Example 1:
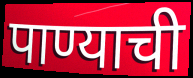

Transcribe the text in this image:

पाण्याची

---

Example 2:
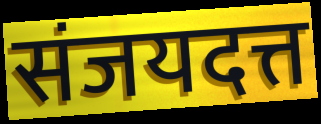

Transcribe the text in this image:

संजयदत्त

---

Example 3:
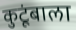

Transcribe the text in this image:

कुटूंबाला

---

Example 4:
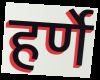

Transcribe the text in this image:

हर्णे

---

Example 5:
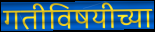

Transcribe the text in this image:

गतीविषयीच्या